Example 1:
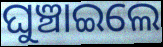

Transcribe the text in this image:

ଘୁଞ୍ଚାଇଲେ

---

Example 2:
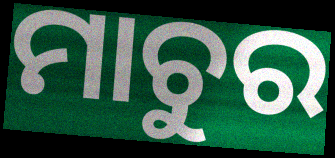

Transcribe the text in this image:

ମାଚୁର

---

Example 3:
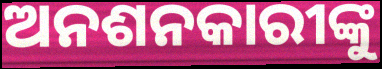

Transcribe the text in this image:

ଅନଶନକାରୀଙ୍କୁ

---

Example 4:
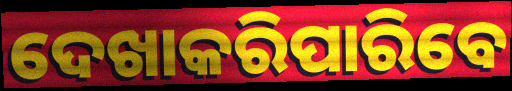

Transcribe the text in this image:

ଦେଖାକରିପାରିବେ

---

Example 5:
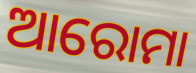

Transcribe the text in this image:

ଆରୋମା